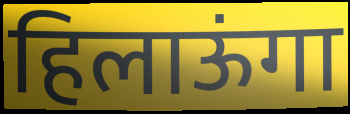
हिलाऊंगा